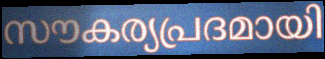
സൗകര്യപ്രദമായി